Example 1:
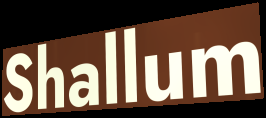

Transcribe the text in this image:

Shallum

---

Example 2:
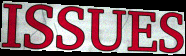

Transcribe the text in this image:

ISSUES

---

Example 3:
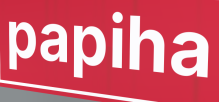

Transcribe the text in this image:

papiha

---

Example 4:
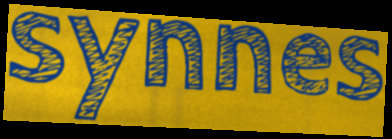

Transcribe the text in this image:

synnes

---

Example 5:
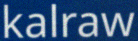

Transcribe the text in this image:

kalraw